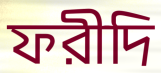
ফরীদি